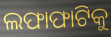
ଲଫାଫାଟିକୁ